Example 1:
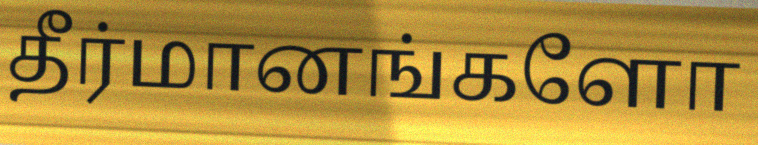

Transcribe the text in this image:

தீர்மானங்களோ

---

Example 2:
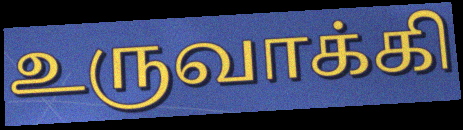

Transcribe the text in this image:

உருவாக்கி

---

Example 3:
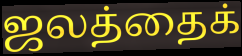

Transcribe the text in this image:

ஜலத்தைக்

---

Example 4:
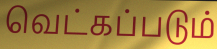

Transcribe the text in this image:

வெட்கப்படும்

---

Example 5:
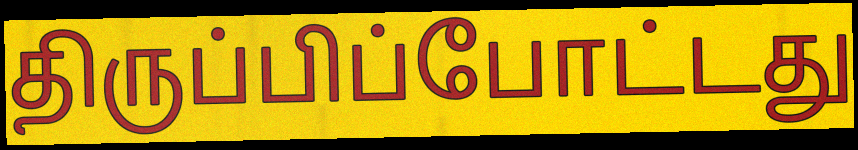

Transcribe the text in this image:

திருப்பிப்போட்டது